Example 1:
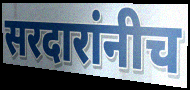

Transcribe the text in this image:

सरदारांनीच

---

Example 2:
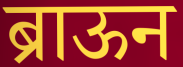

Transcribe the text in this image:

ब्राऊन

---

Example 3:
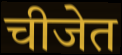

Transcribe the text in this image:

चीजेत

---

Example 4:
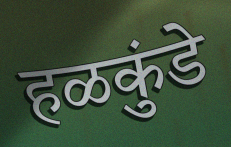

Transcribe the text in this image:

हळकुंडे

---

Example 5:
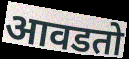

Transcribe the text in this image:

आवडतो